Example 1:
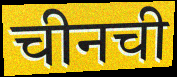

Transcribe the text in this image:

चीनची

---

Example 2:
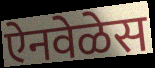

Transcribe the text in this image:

ऐनवेळेस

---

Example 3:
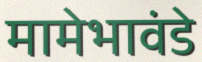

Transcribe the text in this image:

मामेभावंडे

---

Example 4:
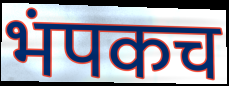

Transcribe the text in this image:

भंपकच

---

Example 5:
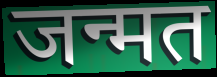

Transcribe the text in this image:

जन्मत